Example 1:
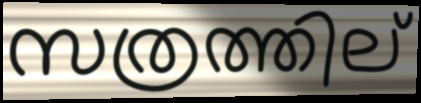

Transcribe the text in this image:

സത്രത്തില്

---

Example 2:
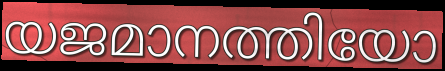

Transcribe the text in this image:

യജമാനത്തിയോ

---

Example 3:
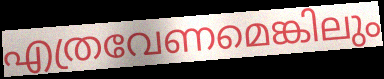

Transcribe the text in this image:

എത്രവേണമെങ്കിലും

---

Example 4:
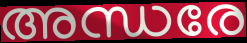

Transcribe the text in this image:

അന്ധരേ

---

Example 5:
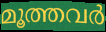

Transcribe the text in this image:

മൂത്തവർ